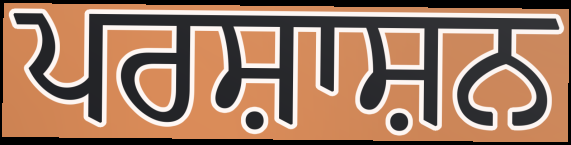
ਪਰਸ਼ਾਸ਼ਨ